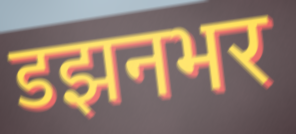
डझनभर